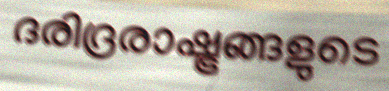
ദരിദ്രരാഷ്ട്രങ്ങളുടെ